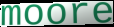
moore